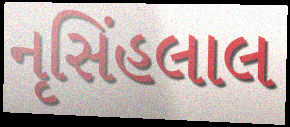
નૃસિંહલાલ